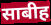
साबीह